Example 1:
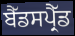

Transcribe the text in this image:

ਬੈੱਡਸਪ੍ਰੈੱਡ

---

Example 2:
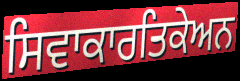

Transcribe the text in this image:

ਸਿਵਾਕਾਰਤਿਕੇਅਨ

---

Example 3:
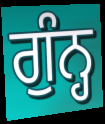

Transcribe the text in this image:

ਗੁੰਨ੍ਹ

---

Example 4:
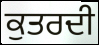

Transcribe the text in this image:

ਕੁਤਰਦੀ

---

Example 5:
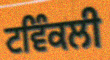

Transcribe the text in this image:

ਟਵਿੰਕਲੀ